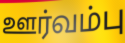
ஊர்வம்பு